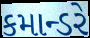
કમાન્ડરે